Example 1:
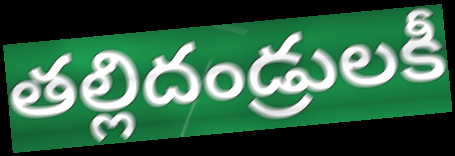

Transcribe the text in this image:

తల్లిదండ్రులకీ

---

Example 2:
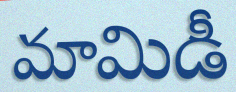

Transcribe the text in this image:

మామిడీ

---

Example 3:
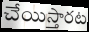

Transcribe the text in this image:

చేయిస్తారట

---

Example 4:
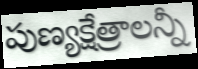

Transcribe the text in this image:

పుణ్యక్షేత్రాలన్నీ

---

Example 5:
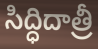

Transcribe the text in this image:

సిద్ధిదాత్రీ